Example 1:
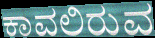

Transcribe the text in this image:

ಕಾವಲಿರುವ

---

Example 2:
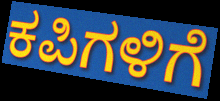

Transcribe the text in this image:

ಕಪಿಗಳಿಗೆ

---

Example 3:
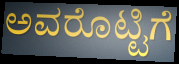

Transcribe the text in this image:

ಅವರೊಟ್ಟಿಗೆ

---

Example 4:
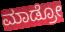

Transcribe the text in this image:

ಮಾಡ್ರೋ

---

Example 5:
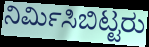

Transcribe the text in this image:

ನಿರ್ಮಿಸಿಬಿಟ್ಟರು